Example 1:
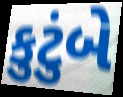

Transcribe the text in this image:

કુટુંબે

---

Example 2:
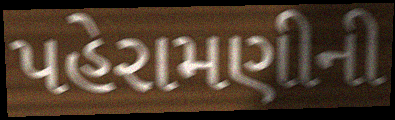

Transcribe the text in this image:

પહેરામણીની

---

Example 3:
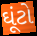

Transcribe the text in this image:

ઘૂંટો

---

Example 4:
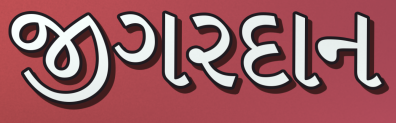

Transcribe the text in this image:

જીગરદાન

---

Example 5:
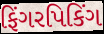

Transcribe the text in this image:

ફિંગરપિકિંગ